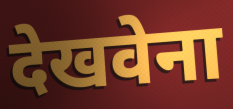
देखवेना